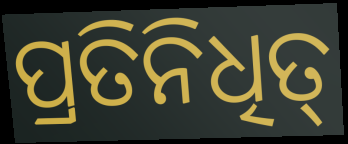
ପ୍ରତିନିଧିତ୍